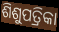
ଶିଶୁପତ୍ରିକା